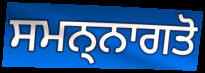
ਸਮਨ੍ਨਾਗਤੋ